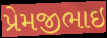
પ્રેમજીભાઇ